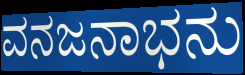
ವನಜನಾಭನು